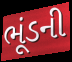
ભૂંડની